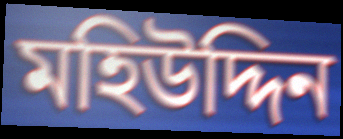
মহিউদ্দিন